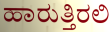
ಹಾರುತ್ತಿರಲಿ